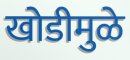
खोडीमुळे